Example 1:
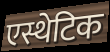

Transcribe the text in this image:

एस्थेटिक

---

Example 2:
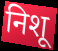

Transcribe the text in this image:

निशू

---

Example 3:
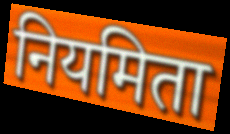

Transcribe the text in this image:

नियमिता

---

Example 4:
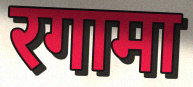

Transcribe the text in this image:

रगामा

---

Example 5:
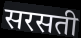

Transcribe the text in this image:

सरसती